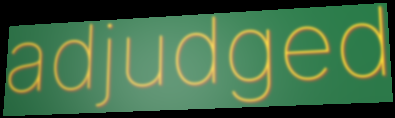
adjudged